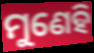
ମୁଣେହି